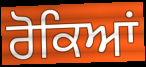
ਰੋਕਿਆਂ